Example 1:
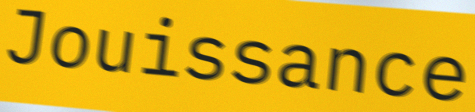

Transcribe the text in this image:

Jouissance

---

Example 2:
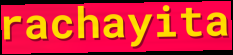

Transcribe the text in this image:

rachayita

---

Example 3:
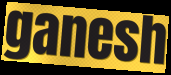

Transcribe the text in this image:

ganesh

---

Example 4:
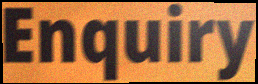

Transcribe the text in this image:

Enquiry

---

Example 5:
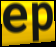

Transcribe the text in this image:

ep